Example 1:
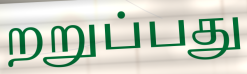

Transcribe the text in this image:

றறுப்பது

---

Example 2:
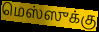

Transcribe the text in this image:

மெஸ்ஸுக்கு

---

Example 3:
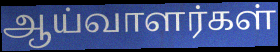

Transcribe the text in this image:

ஆய்வாளர்கள்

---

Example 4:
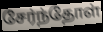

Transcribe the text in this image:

சேர்ந்தோள்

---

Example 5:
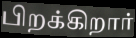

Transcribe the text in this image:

பிறக்கிறார்